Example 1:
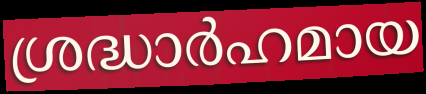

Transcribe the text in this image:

ശ്രദ്ധാർഹമായ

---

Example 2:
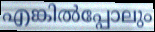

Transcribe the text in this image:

എങ്കിൽപ്പോലും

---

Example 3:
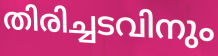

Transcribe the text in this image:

തിരിച്ചടവിനും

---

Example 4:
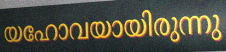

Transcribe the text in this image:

യഹോവയായിരുന്നു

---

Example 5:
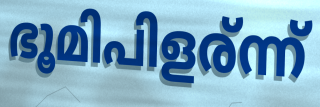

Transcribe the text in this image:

ഭൂമിപിളര്ന്ന്